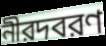
নীরদবরণ